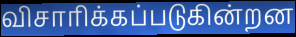
விசாரிக்கப்படுகின்றன